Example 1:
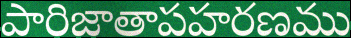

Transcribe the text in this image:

పారిజాతాపహరణము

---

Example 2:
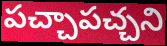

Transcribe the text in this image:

పచ్చాపచ్చని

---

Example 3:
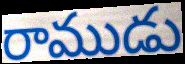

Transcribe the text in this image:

రాముడు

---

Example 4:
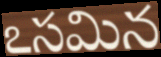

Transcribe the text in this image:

ఽసమిన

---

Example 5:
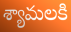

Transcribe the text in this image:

శ్యామలకి